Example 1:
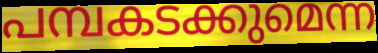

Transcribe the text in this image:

പമ്പകടക്കുമെന്ന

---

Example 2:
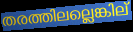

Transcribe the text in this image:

തരത്തിലല്ലെങ്കില്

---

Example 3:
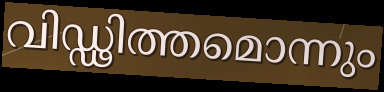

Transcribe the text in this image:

വിഡ്ഢിത്തമൊന്നും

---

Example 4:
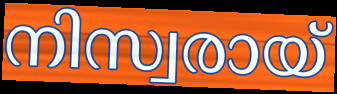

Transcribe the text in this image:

നിസ്വരായ്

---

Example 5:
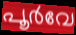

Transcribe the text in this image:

പൂർവേ